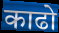
काढो